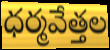
ధర్మవేత్తల